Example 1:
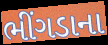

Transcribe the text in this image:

ભીંગડાના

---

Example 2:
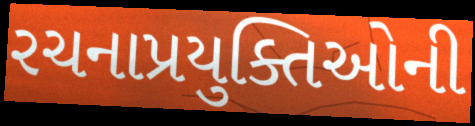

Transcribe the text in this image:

રચનાપ્રયુક્તિઓની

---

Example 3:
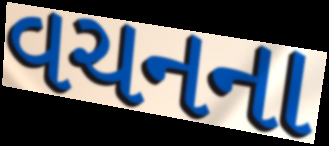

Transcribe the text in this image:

વચનના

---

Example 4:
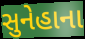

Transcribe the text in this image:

સુનેહાના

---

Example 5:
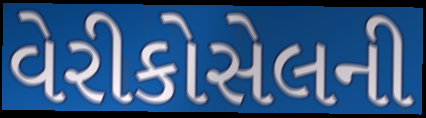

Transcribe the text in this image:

વેરીકોસેલની